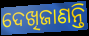
ଦେଖିଜାଣନ୍ତି